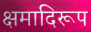
क्षमादिरूप